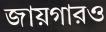
জায়গারও